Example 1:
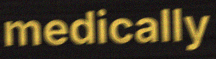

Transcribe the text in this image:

medically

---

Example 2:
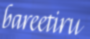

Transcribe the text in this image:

bareetiru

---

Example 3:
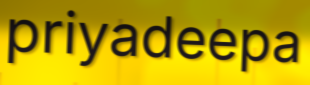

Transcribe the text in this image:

priyadeepa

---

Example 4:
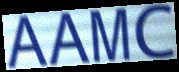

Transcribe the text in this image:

AAMC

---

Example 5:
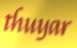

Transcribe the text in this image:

thuyar